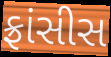
ફ્રાંસીસ